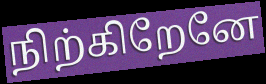
நிற்கிறேனே